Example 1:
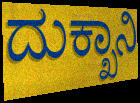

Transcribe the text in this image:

ದುಕ್ಖಾನಿ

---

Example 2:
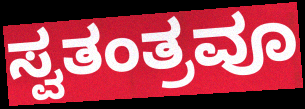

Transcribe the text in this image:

ಸ್ವತಂತ್ರವೂ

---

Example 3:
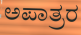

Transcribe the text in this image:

ಅಪಾತ್ರರ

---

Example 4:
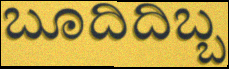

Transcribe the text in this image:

ಬೂದಿದಿಬ್ಬ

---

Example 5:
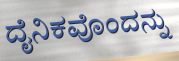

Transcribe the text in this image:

ದೈನಿಕವೊಂದನ್ನು